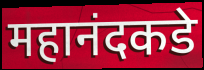
महानंदकडे